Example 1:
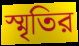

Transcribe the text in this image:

স্মৃতির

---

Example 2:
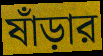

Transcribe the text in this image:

ষাঁড়ার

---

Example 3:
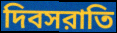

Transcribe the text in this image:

দিবসরাতি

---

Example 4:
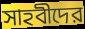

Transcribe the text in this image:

সাহবীদের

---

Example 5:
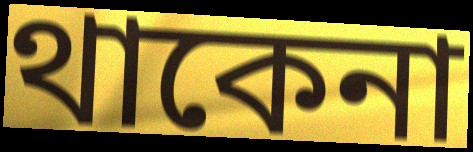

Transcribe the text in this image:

থাকেনা